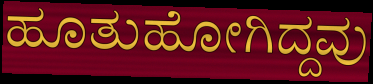
ಹೂತುಹೋಗಿದ್ದವು